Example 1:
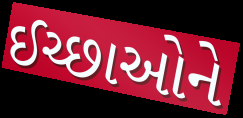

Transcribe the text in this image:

ઈચ્છાઓને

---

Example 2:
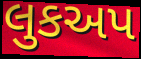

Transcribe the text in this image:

લુકઅપ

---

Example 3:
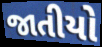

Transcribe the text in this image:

જાતીયો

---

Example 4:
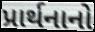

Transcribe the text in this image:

પ્રાર્થનાનો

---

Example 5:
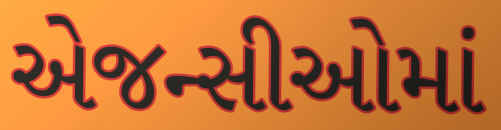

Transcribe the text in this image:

એજન્સીઓમાં